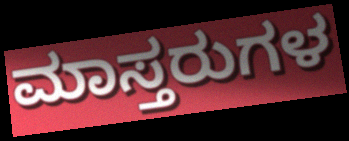
ಮಾಸ್ತರುಗಳ